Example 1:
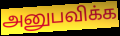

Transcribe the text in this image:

அனுபவிக்க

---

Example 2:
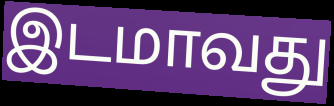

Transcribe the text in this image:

இடமாவது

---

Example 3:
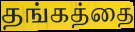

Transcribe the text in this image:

தங்கத்தை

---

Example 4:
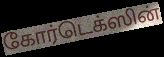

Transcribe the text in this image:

கோர்டெக்ஸின்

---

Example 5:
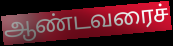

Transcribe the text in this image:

ஆண்டவரைச்